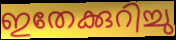
ഇതേക്കുറിച്ചു